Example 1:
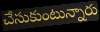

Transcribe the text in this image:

చేసుకుంటున్నారు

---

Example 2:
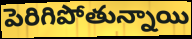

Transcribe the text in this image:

పెరిగిపోతున్నాయి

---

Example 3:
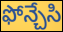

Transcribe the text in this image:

ఫోన్చేసి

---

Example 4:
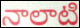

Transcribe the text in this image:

నాలాటి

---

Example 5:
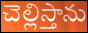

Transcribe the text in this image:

చెల్లిస్తాను